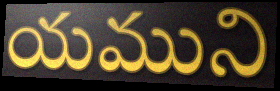
యముని